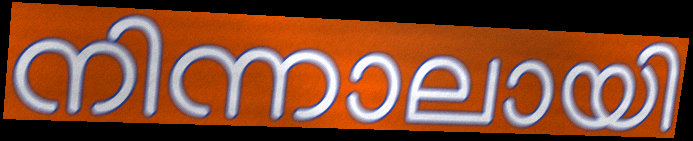
നിന്നാലായി